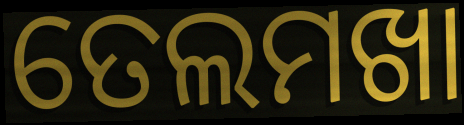
ତେଲମଖା